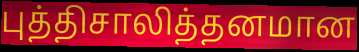
புத்திசாலித்தனமான